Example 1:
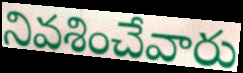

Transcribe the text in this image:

నివశించేవారు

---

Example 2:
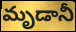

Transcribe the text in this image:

మృడానీ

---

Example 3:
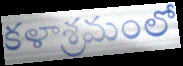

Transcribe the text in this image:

కళాశ్రమంలో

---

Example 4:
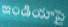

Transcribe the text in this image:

ఇండియాపై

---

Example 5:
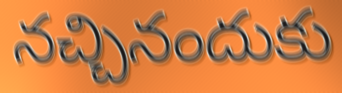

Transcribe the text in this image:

నచ్చినందుకు